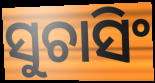
ସୁଚାସିଂ